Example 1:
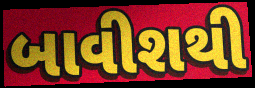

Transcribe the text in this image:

બાવીશથી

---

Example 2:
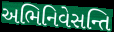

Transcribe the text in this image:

અભિનિવેસન્તિ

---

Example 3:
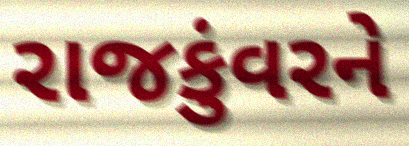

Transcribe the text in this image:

રાજકુંવરને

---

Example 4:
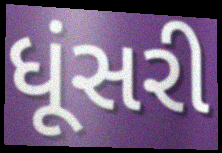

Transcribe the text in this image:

ધૂંસરી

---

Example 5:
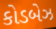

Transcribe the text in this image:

કોડબેઝ